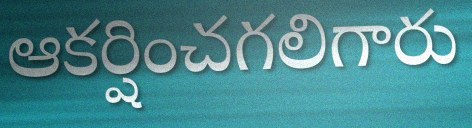
ఆకర్షించగలిగారు